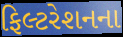
ફિલ્ટરેશનના